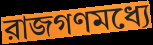
রাজগণমধ্যে